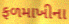
ફળમાખીના